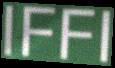
IFFI